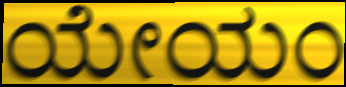
ಯೇಯಂ